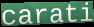
carati